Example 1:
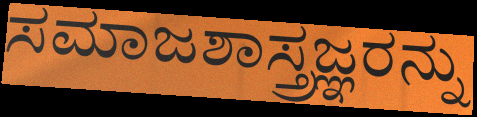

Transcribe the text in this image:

ಸಮಾಜಶಾಸ್ತ್ರಜ್ಞರನ್ನು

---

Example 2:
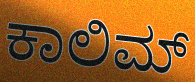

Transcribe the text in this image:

ಕಾಲಿಮ್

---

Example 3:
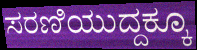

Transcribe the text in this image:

ಸರಣಿಯುದ್ದಕ್ಕೂ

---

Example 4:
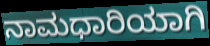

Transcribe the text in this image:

ನಾಮಧಾರಿಯಾಗಿ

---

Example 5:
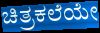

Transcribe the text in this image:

ಚಿತ್ರಕಲೆಯೇ